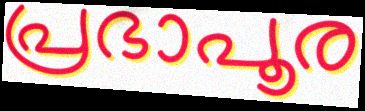
പ്രഭാപൂര